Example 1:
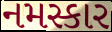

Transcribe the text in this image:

નમસ્કાર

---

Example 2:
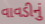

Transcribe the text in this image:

વાવડીનું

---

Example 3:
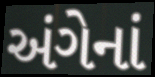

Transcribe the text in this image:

અંગેનાં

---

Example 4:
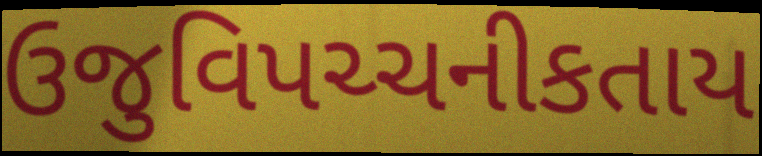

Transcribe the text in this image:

ઉજુવિપચ્ચનીકતાય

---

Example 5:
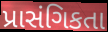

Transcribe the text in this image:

પ્રાસંગિકતા